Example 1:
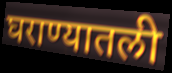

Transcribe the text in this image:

घराण्यातली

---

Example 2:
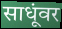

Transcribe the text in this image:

साधूंवर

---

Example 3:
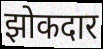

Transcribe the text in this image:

झोकदार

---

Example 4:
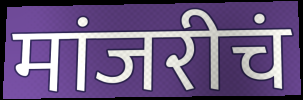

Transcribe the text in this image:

मांजरीचं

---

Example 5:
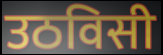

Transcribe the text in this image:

उठविसी